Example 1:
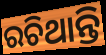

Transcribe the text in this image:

ରଚିଥାନ୍ତି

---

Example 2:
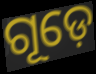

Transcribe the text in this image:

ଗୂଡ଼େ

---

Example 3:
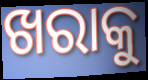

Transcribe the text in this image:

ଖରାକୁ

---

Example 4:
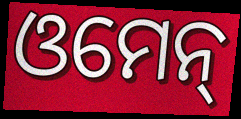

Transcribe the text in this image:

ଓମେନ୍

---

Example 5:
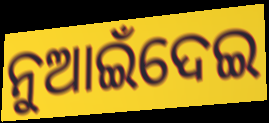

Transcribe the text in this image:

ନୁଆଇଁଦେଇ